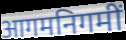
आगमनिगमीं